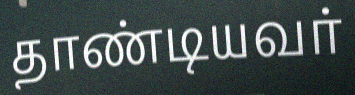
தாண்டியவர்